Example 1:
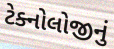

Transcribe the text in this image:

ટેક્નોલોજીનું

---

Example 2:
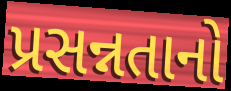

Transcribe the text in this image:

પ્રસન્નતાનો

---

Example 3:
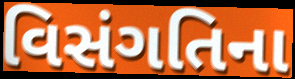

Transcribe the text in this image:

વિસંગતિના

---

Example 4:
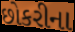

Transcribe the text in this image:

છોકરીના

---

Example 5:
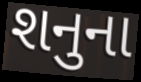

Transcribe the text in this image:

શનુના